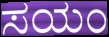
ಸಯಂ